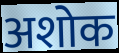
अशोक